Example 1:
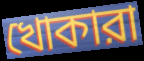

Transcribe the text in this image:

খোকারা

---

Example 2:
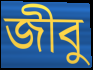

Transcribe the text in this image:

জীবু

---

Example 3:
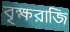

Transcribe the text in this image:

বৃক্ষরাজি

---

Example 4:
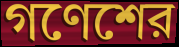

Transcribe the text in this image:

গণেশের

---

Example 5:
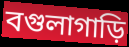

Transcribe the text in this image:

বগুলাগাড়ি